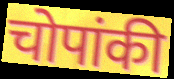
चोपांकी